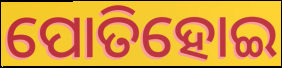
ପୋତିହୋଇ